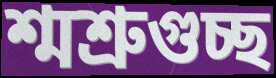
শ্মশ্রুগুচ্ছ